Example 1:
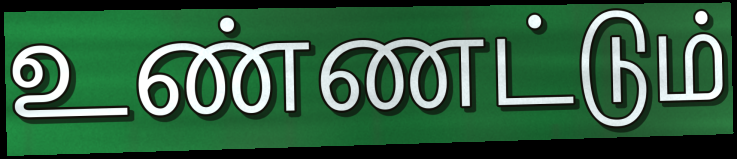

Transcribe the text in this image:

உண்ணட்டும்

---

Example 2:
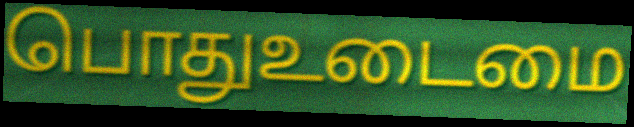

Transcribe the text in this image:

பொதுஉடைமை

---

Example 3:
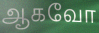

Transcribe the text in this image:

ஆகவோ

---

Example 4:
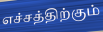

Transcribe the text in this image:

எச்சத்திற்கும்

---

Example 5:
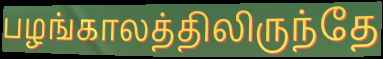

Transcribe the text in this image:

பழங்காலத்திலிருந்தே